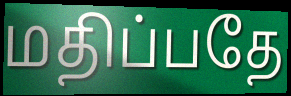
மதிப்பதே